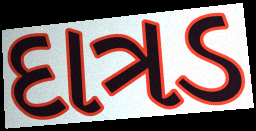
દાત્રડ